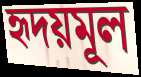
হৃদয়মূল